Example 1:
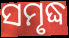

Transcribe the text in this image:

ସମୃଦ୍ଧ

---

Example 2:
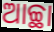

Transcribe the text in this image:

ଆଚ୍ଛା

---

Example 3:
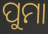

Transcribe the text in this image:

ପୁମା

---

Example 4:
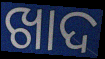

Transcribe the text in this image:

ଖାଦ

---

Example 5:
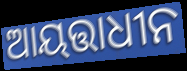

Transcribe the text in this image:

ଆୟତ୍ତାଧୀନ